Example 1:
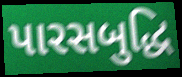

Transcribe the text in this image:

પારસબુદ્ધિ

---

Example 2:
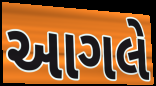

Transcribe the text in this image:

આગલે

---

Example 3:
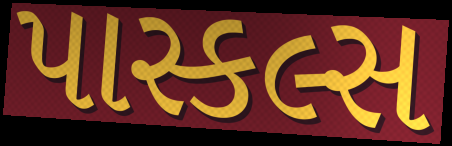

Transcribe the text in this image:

પાસ્કલ્સ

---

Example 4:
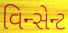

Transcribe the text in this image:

વિન્સેન્ટ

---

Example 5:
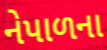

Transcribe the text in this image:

નેપાળના